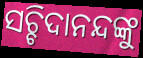
ସଚ୍ଚିଦାନନ୍ଦଙ୍କୁ